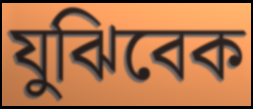
যুঝিবেক